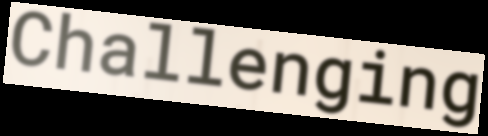
Challenging